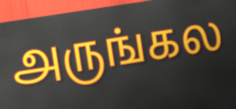
அருங்கல